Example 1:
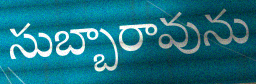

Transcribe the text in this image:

సుబ్బారావును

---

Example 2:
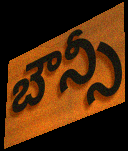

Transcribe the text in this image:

బౌన్సీ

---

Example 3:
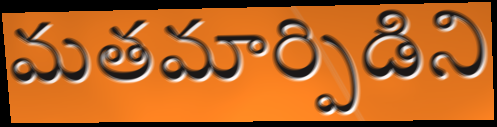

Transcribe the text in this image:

మతమార్పిడిని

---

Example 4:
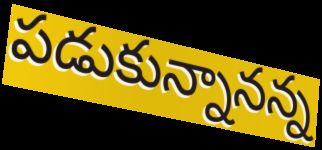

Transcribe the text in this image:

పడుకున్నానన్న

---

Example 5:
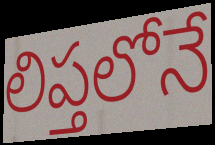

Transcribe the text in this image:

లిప్తలోనే